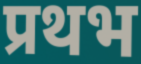
प्रथभ